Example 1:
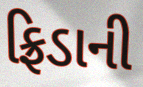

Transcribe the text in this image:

ફ્રિડાની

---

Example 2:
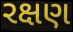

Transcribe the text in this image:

રક્ષણ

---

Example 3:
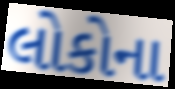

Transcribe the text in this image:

લોકોના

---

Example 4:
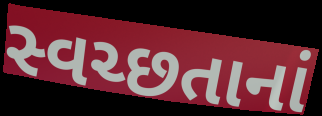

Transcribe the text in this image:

સ્વચ્છતાનાં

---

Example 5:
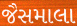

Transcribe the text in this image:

જૈસમાલા